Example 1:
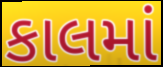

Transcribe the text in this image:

કાલમાં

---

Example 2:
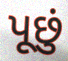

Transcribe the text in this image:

પૂછું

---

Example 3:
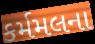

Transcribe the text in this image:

કર્મમલના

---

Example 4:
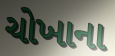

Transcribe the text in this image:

ચોખાના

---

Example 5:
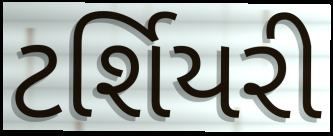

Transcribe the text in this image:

ટર્શિયરી